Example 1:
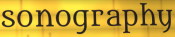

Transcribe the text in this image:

sonography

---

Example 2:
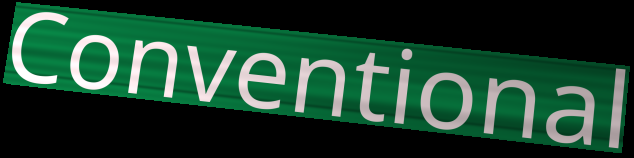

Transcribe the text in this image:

Conventional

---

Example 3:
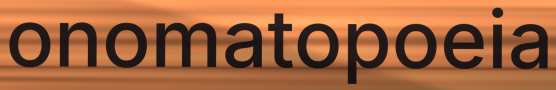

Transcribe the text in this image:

onomatopoeia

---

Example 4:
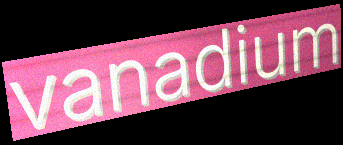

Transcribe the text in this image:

vanadium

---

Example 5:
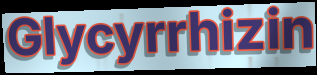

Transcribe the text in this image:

Glycyrrhizin